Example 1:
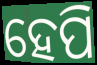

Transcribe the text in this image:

ହେପି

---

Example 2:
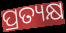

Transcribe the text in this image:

ପ୍ରତ୍ୟକ୍ଷ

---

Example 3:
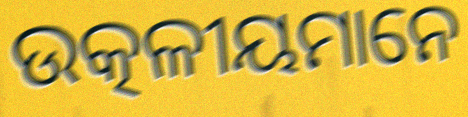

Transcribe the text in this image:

ଉତ୍କଳୀୟମାନେ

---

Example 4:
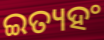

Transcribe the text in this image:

ଇତ୍ୟହଂ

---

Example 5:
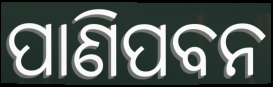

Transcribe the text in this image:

ପାଣିପବନ